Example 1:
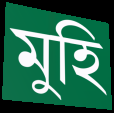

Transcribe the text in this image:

মুহি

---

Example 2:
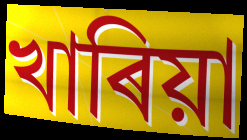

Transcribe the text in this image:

খাৰিয়া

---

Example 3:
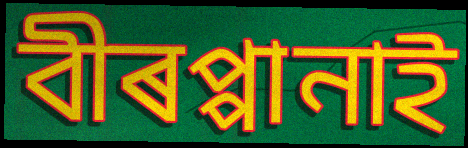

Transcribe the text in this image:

বীৰপ্পানাই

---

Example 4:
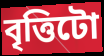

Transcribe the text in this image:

বৃত্তিটো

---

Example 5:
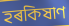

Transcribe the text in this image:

হৰকিষাণ